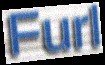
Furl